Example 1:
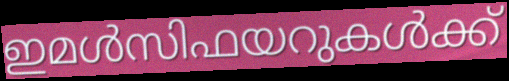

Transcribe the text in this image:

ഇമൾസിഫയറുകൾക്ക്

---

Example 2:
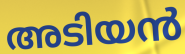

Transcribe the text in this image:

അടിയൻ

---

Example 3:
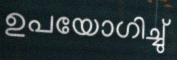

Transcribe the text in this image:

ഉപയോഗിച്ചു്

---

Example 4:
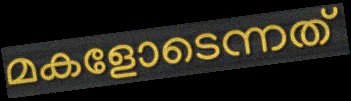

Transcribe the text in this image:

മകളോടെന്നത്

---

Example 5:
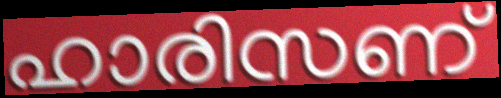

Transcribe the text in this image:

ഹാരിസണ്